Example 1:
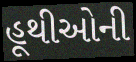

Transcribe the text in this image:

હૂથીઓની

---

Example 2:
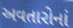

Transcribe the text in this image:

અવતારોનાં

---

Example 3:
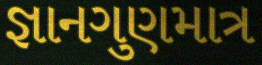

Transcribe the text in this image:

જ્ઞાનગુણમાત્ર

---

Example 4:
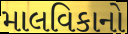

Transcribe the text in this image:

માલવિકાનો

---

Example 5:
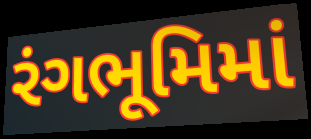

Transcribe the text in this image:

રંગભૂમિમાં